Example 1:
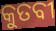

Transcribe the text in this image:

କୁତବୀ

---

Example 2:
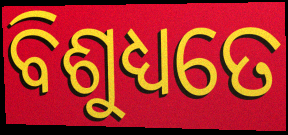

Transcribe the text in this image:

ବିଶୁଧ୍ୟତେ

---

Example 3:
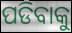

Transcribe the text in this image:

ପଡିବାକୁ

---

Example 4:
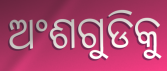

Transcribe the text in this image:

ଅଂଶଗୁଡିକୁ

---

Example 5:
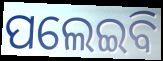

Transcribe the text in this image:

ପଲେଇବି